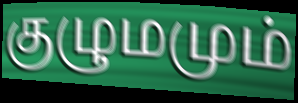
குழுமமும்